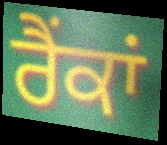
ਰੈਂਕਾਂ